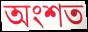
অংশত